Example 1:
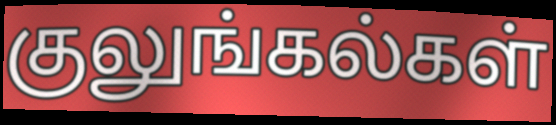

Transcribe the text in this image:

குலுங்கல்கள்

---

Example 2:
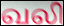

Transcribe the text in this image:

வலி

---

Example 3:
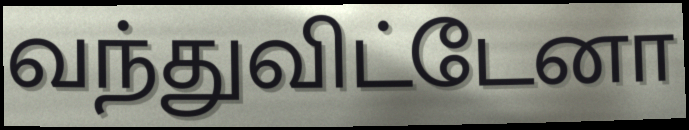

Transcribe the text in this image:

வந்துவிட்டேனா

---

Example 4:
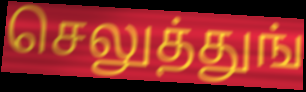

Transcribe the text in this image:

செலுத்துங்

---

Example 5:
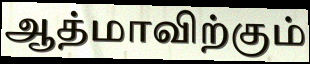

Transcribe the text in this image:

ஆத்மாவிற்கும்